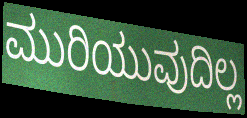
ಮುರಿಯುವುದಿಲ್ಲ